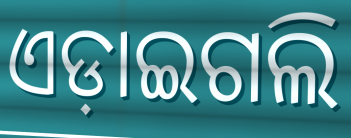
ଏଡ଼ାଇଗଲି